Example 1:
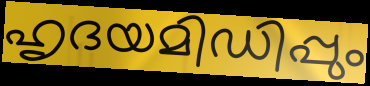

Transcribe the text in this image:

ഹൃദയമിഡിപ്പും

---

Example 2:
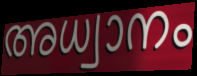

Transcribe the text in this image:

അധ്വാനം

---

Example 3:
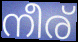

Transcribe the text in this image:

നീര്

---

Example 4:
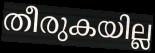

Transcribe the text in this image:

തീരുകയില്ല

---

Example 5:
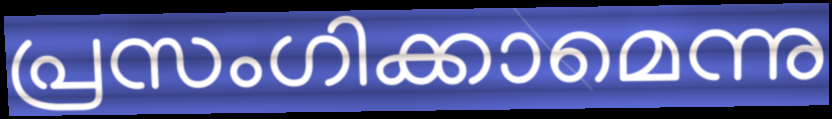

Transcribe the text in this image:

പ്രസംഗിക്കാമെന്നു